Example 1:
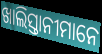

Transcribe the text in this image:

ଖାଲିସ୍ତାନୀମାନେ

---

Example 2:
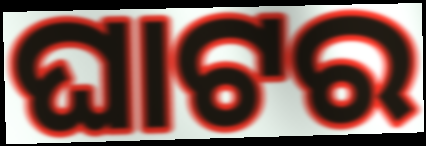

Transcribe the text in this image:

ଘାଟର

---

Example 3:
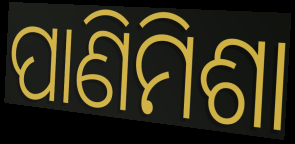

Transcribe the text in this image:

ପାଣିମିଶା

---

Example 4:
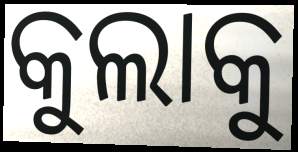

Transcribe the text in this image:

କୁଲାକୁ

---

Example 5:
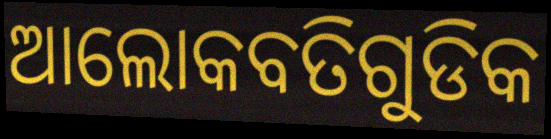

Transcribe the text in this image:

ଆଲୋକବତିଗୁଡିକ